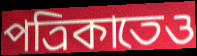
পত্রিকাতেও